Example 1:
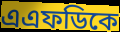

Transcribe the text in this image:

এএফডিকে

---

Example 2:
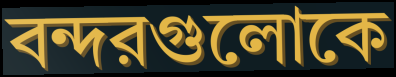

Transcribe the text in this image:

বন্দরগুলোকে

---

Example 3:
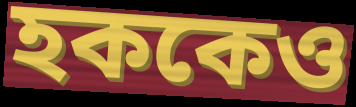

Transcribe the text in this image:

হককেও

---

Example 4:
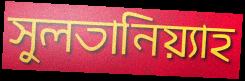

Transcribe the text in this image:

সুলতানিয়্যাহ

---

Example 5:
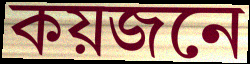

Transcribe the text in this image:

কয়জনে